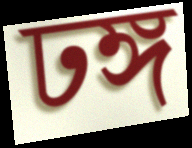
ঢঙ্গ